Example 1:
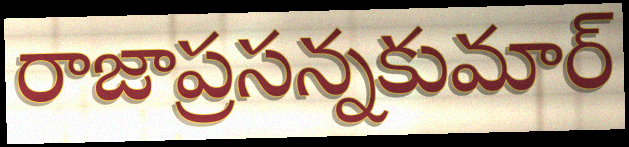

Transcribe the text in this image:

రాజాప్రసన్నకుమార్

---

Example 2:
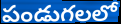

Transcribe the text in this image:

పండుగలలో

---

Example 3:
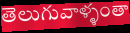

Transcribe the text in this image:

తెలుగువాళ్ళంతా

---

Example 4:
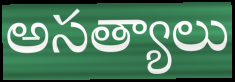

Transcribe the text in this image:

అసత్యాలు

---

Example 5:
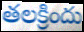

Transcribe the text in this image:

తలక్రిందు